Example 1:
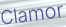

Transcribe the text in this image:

Clamor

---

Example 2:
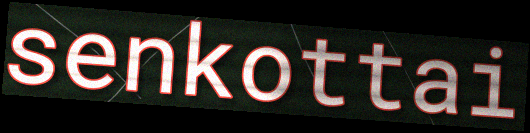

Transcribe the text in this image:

senkottai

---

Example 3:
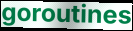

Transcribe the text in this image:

goroutines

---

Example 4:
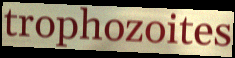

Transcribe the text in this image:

trophozoites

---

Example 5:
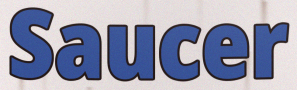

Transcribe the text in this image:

Saucer